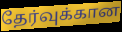
தேர்வுக்கான